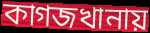
কাগজখানায়